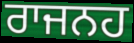
ਰਾਜਨਹ